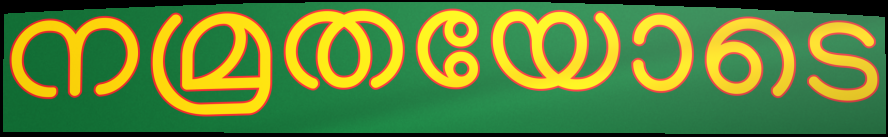
നമ്രതയോടെ